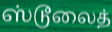
ஸ்டூலைத்